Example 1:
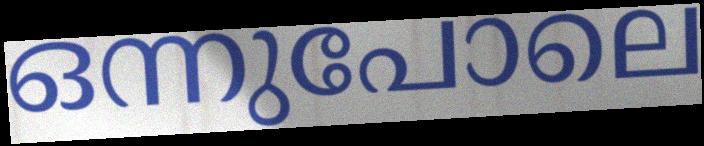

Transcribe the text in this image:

ഒന്നുപോലെ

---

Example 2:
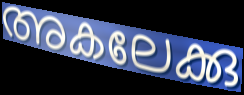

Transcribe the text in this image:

അകലേക്കു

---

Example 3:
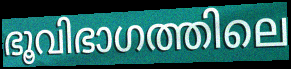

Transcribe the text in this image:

ഭൂവിഭാഗത്തിലെ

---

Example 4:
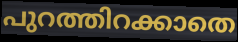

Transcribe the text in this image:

പുറത്തിറക്കാതെ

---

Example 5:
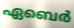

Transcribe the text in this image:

ഏബെർ